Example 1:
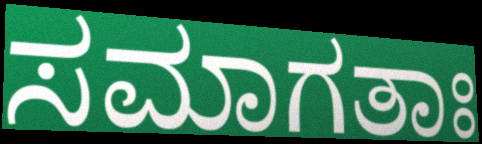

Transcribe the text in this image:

ಸಮಾಗತಾಃ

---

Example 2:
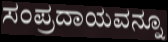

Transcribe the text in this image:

ಸಂಪ್ರದಾಯವನ್ನೂ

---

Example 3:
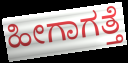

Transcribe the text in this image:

ಹೀಗಾಗತ್ತೆ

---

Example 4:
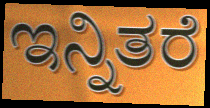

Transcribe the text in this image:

ಇನ್ನಿತರೆ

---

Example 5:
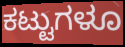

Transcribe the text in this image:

ಕಟ್ಟುಗಳೂ